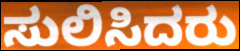
ಸುಲಿಸಿದರು